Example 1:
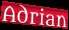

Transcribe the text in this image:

Adrian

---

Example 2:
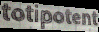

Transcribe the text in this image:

totipotent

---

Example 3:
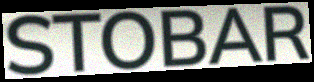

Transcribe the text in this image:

STOBAR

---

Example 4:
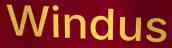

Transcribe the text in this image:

Windus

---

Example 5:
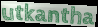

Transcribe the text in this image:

utkantha